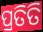
ପ୍ରତିତି